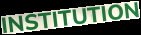
INSTITUTION